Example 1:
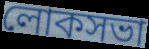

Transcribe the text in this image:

লোকসভা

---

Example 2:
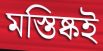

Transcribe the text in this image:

মস্তিষ্কই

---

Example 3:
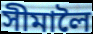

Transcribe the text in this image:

সীমালৈ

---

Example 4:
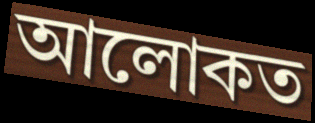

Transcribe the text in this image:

আলোকত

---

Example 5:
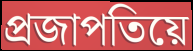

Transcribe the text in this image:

প্ৰজাপতিয়ে